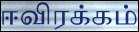
ஈவிரக்கம்